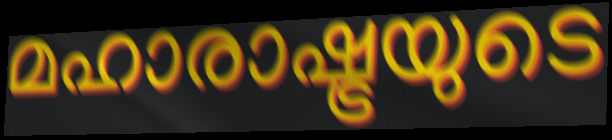
മഹാരാഷ്ട്രയുടെ